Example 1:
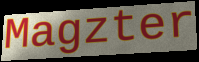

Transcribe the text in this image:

Magzter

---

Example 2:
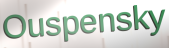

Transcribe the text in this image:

Ouspensky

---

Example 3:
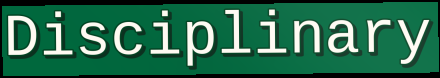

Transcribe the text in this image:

Disciplinary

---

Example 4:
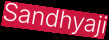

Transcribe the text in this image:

Sandhyaji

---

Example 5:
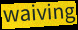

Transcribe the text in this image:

waiving